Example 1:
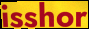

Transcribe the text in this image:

isshor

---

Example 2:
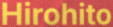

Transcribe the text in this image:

Hirohito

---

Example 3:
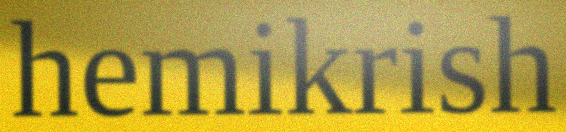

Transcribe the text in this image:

hemikrish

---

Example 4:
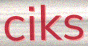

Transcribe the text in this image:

ciks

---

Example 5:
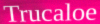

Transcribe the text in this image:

Trucaloe